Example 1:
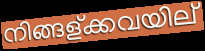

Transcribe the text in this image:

നിങ്ങള്ക്കവയില്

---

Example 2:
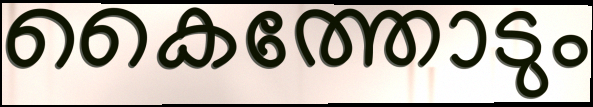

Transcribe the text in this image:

കൈത്തോടും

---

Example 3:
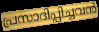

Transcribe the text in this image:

പ്രസാദിപ്പിച്ചവൻ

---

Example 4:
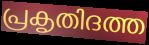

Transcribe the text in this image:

പ്രകൃതിദത്ത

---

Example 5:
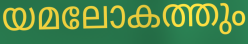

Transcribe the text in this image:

യമലോകത്തും